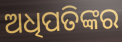
ଅଧିପତିଙ୍କର